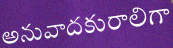
అనువాదకురాలిగా